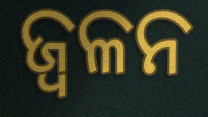
ଜ୍ୱଳନ